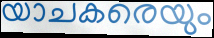
യാചകരെയും